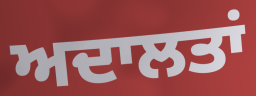
ਅਦਾਲਤਾਂ